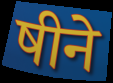
षीने